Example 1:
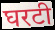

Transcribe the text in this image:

घरटी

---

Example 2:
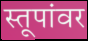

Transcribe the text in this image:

स्तूपांवर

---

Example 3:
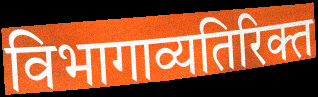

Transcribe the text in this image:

विभागाव्यतिरिक्त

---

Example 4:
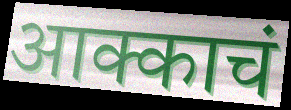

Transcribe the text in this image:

आक्काचं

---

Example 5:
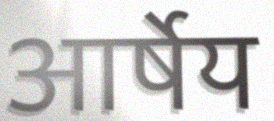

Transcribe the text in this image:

आर्षेय